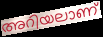
അറിയലാണ്